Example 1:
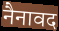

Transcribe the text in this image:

नैनावद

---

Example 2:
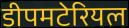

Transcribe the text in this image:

डीपमटेरियल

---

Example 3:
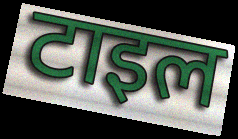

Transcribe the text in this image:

टाइल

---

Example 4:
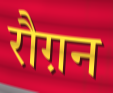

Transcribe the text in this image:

रौग़न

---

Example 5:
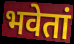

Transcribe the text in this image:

भवेतां